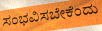
ಸಂಭವಿಸಬೇಕೆಂದು